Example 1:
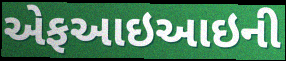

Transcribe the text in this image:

એફઆઇઆઇની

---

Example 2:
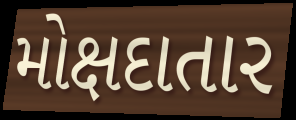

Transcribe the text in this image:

મોક્ષદાતાર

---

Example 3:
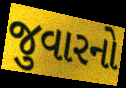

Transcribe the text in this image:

જુવારનો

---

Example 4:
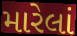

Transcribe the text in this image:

મારેલાં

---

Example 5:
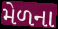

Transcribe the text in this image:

મેળના